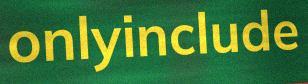
onlyinclude